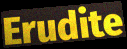
Erudite